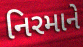
નિરમાને